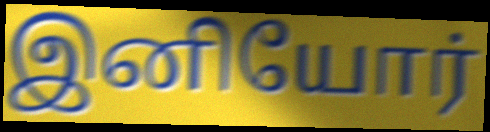
இனியோர்